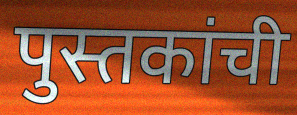
पुस्तकांची